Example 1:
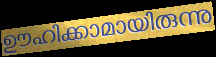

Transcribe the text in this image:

ഊഹിക്കാമായിരുന്നു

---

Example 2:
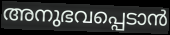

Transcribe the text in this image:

അനുഭവപ്പെടാൻ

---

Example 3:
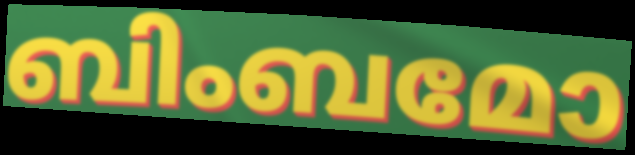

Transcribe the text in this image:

ബിംബമോ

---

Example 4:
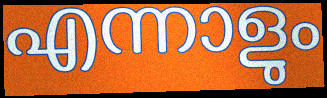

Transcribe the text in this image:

എന്നാളും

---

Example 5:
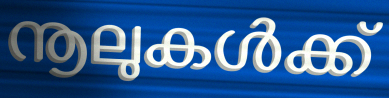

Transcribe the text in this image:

നൂലുകൾക്ക്